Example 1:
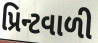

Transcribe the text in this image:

પ્રિન્ટવાળી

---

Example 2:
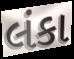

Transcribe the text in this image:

લંકા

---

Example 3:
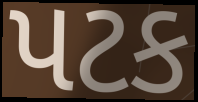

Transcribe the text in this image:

પટક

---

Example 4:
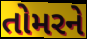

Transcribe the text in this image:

તોમરને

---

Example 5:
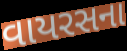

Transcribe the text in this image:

વાયરસના